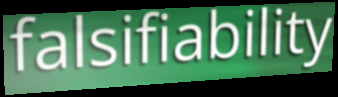
falsifiability